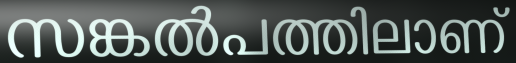
സങ്കൽപത്തിലാണ്